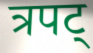
त्रपट्